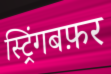
स्ट्रिंगबफ़र